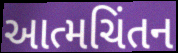
આત્મચિંતન